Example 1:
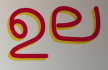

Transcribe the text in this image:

ഉല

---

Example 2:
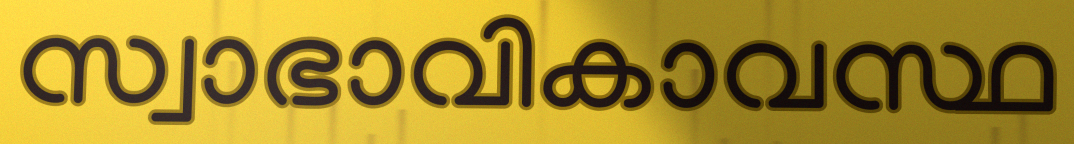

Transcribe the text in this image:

സ്വാഭാവികാവസ്ഥ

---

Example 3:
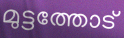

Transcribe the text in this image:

മുട്ടത്തോട്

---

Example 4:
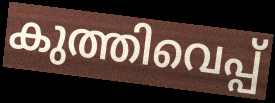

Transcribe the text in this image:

കുത്തിവെപ്പ്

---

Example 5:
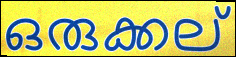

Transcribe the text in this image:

ഒരുക്കല്